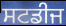
ਸਟਡੀਜ